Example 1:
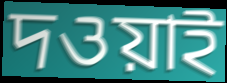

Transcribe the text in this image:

দওয়াই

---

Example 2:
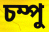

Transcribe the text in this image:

চম্পু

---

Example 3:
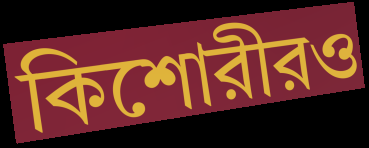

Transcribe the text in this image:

কিশোরীরও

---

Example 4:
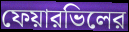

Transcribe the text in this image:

ফেয়ারভিলের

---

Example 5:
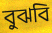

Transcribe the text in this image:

বুঝবি